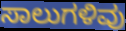
ಸಾಲುಗಳಿವು